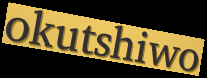
okutshiwo